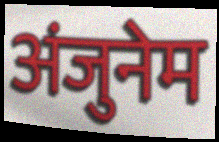
अंजुनेम